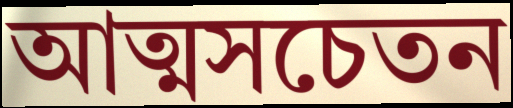
আত্মসচেতন